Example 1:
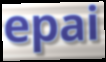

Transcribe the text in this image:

epai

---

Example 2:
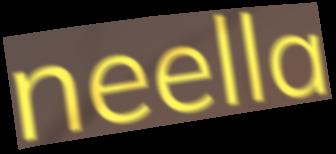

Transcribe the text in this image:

neella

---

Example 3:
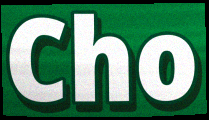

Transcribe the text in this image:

Cho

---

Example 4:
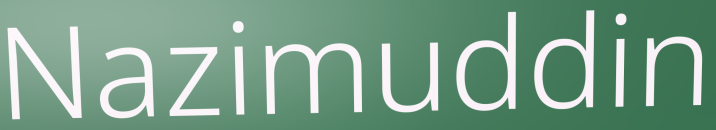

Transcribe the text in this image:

Nazimuddin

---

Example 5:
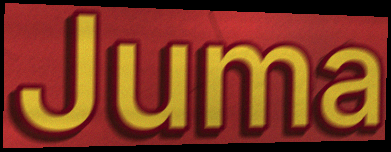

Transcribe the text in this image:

Juma